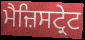
ਮੈਜ਼ਿਸਟ੍ਰੇਟ